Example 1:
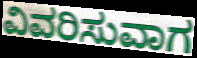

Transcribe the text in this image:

ವಿವರಿಸುವಾಗ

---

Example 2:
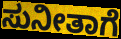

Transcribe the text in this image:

ಸುನೀತಾಗೆ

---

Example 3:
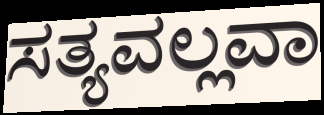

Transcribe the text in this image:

ಸತ್ಯವಲ್ಲವಾ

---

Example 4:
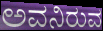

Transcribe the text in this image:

ಅವನಿರುವ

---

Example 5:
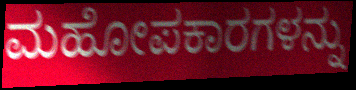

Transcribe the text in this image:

ಮಹೋಪಕಾರಗಳನ್ನು